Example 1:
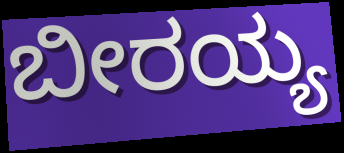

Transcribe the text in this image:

ಬೀರಯ್ಯ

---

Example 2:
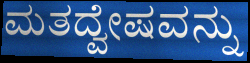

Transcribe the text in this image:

ಮತದ್ವೇಷವನ್ನು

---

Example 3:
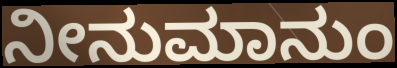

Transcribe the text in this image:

ನೀನುಮಾನುಂ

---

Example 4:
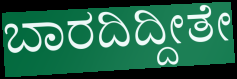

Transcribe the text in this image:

ಬಾರದಿದ್ದೀತೇ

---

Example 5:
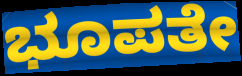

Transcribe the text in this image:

ಭೂಪತೇ